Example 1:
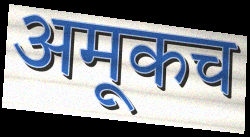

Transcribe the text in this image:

अमूकच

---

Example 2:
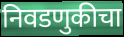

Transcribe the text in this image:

निवडणुकीचा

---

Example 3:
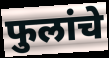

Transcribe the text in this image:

फुलांचे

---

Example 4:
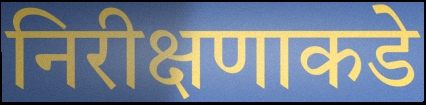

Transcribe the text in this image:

निरीक्षणाकडे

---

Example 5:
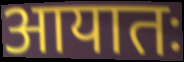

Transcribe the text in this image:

आयातः